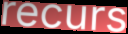
recurs